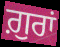
ਗ਼ੁਰਾਂ